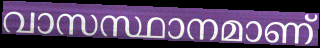
വാസസ്ഥാനമാണ്